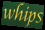
whips